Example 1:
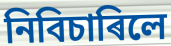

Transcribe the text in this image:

নিবিচাৰিলে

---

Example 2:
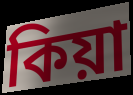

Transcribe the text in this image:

কিয়া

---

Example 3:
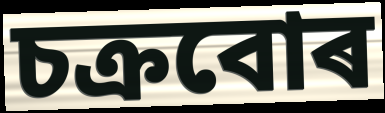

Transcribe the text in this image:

চক্ৰবোৰ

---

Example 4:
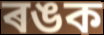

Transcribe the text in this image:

ৰঙক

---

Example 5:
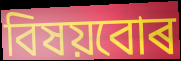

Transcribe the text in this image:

বিষয়বোৰ